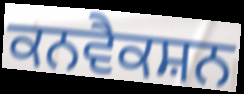
ਕਨਵੈਕਸ਼ਨ